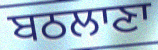
ਬਠਲਾਣਾ